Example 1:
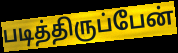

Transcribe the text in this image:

படித்திருப்பேன்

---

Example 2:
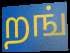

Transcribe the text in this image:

றங்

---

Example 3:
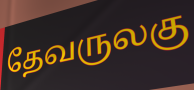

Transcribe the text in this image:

தேவருலகு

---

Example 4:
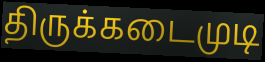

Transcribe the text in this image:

திருக்கடைமுடி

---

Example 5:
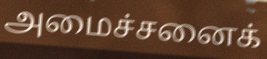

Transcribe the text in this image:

அமைச்சனைக்